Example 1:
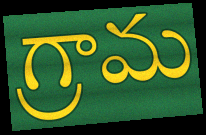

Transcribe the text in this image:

గ్రామ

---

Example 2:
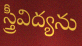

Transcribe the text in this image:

స్త్రీవిద్యను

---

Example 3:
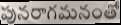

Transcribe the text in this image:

పునరాగమనంతో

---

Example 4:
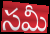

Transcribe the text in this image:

సమీ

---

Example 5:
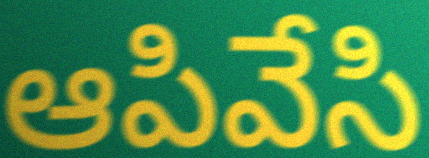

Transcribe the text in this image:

ఆపివేసి